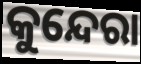
କୁନ୍ଦେରା